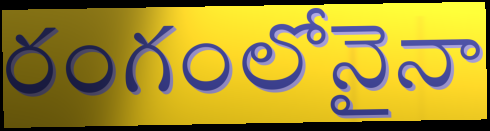
రంగంలోనైనా